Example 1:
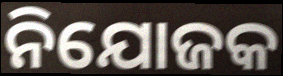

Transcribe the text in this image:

ନିଯୋଜକ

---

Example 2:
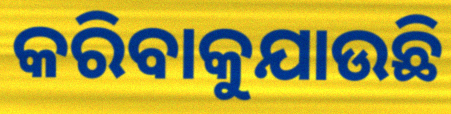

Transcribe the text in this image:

କରିବାକୁଯାଉଛି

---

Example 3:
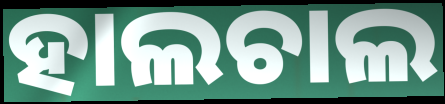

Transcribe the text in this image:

ହାଲଚାଲ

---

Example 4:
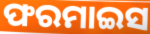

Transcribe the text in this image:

ଫରମାଇସ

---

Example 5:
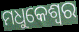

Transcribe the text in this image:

ମଧୁକେଶ୍ୱର